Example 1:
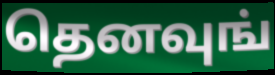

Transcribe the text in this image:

தெனவுங்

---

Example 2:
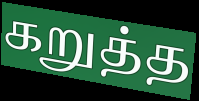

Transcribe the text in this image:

கறுத்த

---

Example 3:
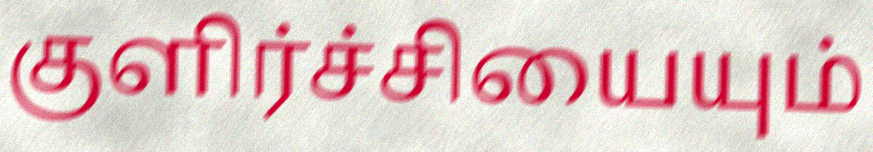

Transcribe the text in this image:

குளிர்ச்சியையும்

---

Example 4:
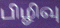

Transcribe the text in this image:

பிழிவு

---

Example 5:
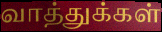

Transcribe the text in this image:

வாத்துக்கள்